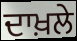
ਦਾਖ਼ਲੇ